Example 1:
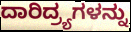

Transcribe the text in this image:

ದಾರಿದ್ರ್ಯಗಳನ್ನು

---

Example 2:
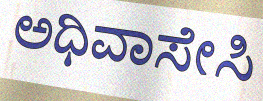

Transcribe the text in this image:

ಅಧಿವಾಸೇಸಿ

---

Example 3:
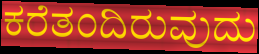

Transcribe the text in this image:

ಕರೆತಂದಿರುವುದು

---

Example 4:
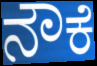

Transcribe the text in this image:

ನೌಕೆ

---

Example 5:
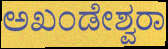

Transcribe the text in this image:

ಅಖಂಡೇಶ್ವರಾ